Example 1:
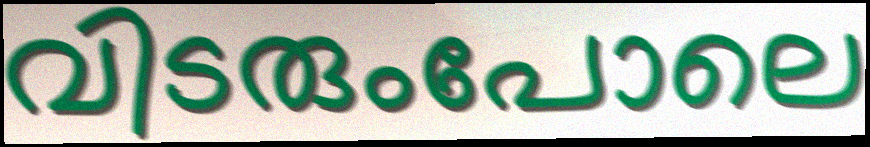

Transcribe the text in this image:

വിടരുംപോലെ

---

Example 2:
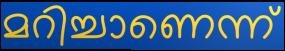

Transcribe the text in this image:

മറിച്ചാണെന്ന്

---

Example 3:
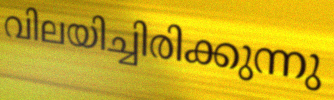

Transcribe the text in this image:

വിലയിച്ചിരിക്കുന്നു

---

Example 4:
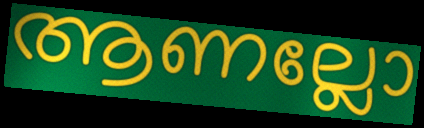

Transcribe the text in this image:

ആണല്ലോ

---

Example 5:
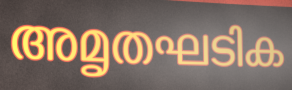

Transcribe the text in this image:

അമൃതഘടിക